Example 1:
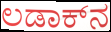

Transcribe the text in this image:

ಲಡಾಕ್‌ನ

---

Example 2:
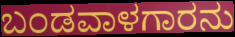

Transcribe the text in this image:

ಬಂಡವಾಳಗಾರನು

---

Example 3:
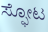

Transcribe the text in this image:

ಸ್ಫೋಟ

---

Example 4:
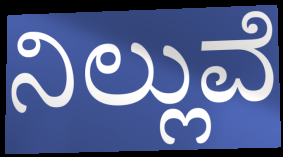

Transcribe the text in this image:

ನಿಲ್ಲುವೆ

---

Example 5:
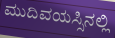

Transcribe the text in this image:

ಮುದಿವಯಸ್ಸಿನಲ್ಲಿ